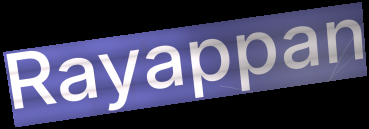
Rayappan